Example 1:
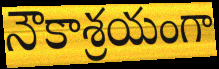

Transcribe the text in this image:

నౌకాశ్రయంగా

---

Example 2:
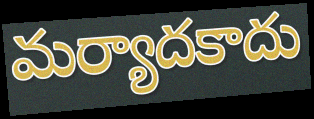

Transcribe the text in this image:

మర్యాదకాదు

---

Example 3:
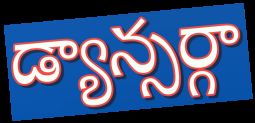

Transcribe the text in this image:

డ్యాన్సర్గా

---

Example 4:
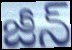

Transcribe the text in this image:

జీన్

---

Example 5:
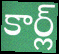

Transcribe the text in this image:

కార్ల్